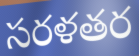
సరళతర